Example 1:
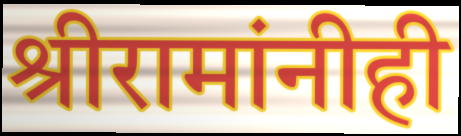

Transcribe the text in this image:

श्रीरामांनीही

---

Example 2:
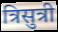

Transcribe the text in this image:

त्रिसुत्री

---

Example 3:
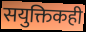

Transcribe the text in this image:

सयुक्तिकही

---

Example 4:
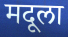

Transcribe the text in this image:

मदूला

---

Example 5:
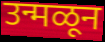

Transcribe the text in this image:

उन्मळून